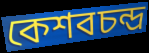
কেশবচন্দ্র